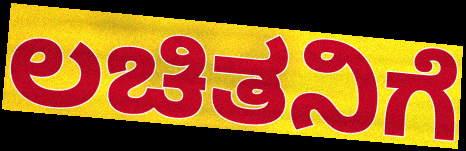
ಲಚಿತನಿಗೆ